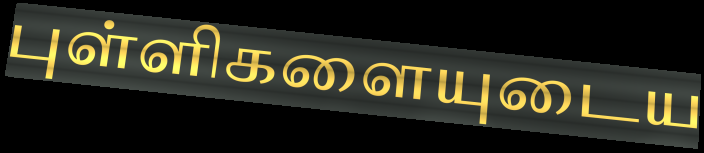
புள்ளிகளையுடைய